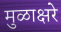
मुळाक्षरे